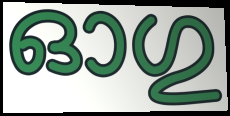
ഓഗു